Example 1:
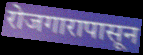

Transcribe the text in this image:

रोजगारापासून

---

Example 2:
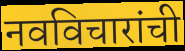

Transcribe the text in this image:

नवविचारांची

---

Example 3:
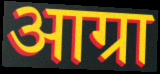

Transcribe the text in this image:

आग्रा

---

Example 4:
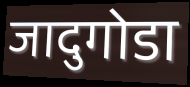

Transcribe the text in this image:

जादुगोडा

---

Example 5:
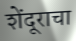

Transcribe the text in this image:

शेंदूराचा